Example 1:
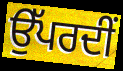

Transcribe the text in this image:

ਉੱਪਰਦੀਂ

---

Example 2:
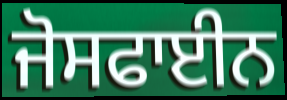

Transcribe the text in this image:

ਜੋਸਫਾਈਨ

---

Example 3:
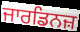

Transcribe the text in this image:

ਜਾਰਡਿਨਜ਼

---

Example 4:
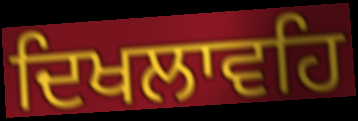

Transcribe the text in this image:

ਦਿਖਲਾਵਹਿ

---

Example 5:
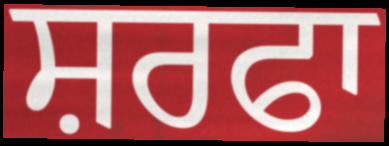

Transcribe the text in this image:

ਸ਼ਰਫਾ